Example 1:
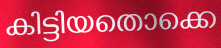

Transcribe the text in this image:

കിട്ടിയതൊക്കെ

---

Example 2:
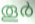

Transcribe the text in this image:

തൂർ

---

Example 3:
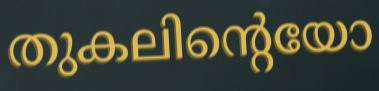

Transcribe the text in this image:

തുകലിന്റെയോ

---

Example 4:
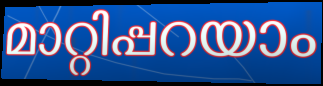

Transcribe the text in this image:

മാറ്റിപ്പറയാം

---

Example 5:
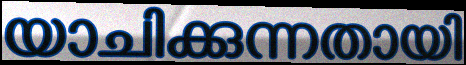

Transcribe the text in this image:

യാചിക്കുന്നതായി